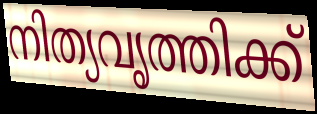
നിത്യവൃത്തിക്ക്